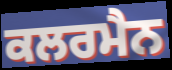
ਕਲਰਮੈਨ